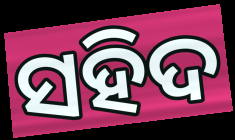
ସହିଦ